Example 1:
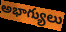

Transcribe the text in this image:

అభాగ్యులు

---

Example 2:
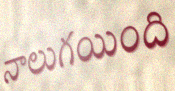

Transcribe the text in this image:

నాలుగయింది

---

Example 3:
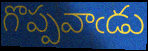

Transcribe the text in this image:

గొప్పవాఁడు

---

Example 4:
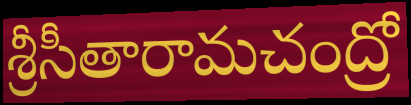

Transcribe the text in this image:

శ్రీసీతారామచంద్రో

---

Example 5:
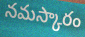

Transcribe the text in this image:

నమస్కారం